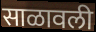
साळावली